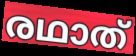
രഥാത്